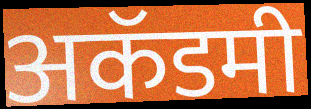
अकॅडमी